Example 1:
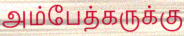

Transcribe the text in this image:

அம்பேத்கருக்கு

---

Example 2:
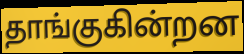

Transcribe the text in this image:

தாங்குகின்றன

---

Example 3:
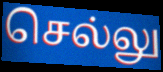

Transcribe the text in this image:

செல்லு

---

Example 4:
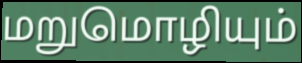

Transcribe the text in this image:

மறுமொழியும்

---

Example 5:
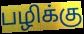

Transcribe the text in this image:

பழிக்கு